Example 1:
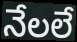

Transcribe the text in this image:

నేలలే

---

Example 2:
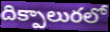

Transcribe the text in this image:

దిక్పాలురలో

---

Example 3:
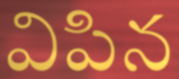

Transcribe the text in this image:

విపిన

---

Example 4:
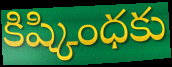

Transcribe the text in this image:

కిష్కింధకు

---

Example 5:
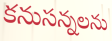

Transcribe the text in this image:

కనుసన్నలను